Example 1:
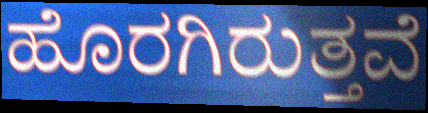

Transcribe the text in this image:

ಹೊರಗಿರುತ್ತವೆ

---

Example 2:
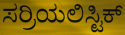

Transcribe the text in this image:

ಸರ್ರಿಯಲಿಸ್ಟಿಕ್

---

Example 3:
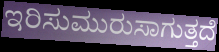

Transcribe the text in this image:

ಇರಿಸುಮುರುಸಾಗುತ್ತದೆ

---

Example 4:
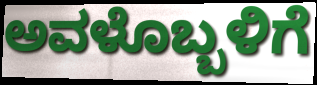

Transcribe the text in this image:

ಅವಳೊಬ್ಬಳಿಗೆ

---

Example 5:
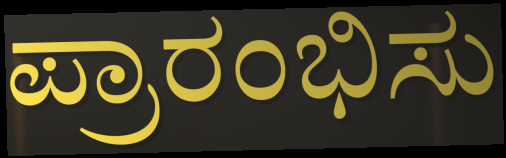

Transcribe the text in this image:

ಪ್ರಾರಂಭಿಸು